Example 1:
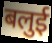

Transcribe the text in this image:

बलुई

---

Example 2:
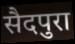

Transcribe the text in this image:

सैदपुरा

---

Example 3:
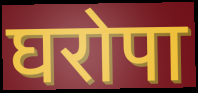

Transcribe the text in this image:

घरोपा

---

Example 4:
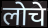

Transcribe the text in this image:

लोचे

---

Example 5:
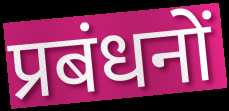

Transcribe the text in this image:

प्रबंधनों